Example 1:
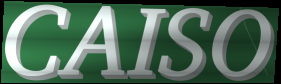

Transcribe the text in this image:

CAISO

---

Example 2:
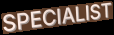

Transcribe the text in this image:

SPECIALIST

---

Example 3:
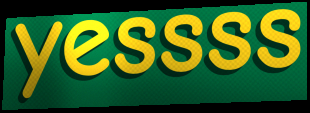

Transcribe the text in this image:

yessss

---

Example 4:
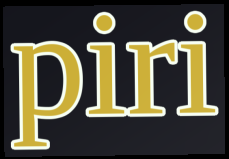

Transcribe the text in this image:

piri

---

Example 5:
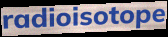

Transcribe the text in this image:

radioisotope